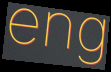
eng